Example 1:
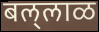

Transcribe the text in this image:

बल्लाळ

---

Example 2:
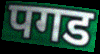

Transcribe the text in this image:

पगड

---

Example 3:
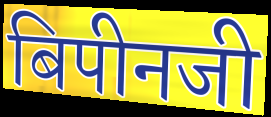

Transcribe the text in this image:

बिपीनजी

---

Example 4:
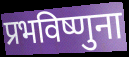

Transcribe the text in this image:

प्रभविष्णुना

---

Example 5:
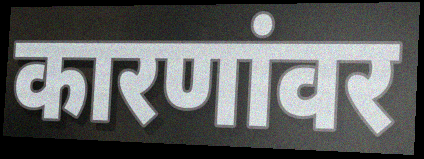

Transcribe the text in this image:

कारणांवर